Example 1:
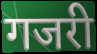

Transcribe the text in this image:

गजरी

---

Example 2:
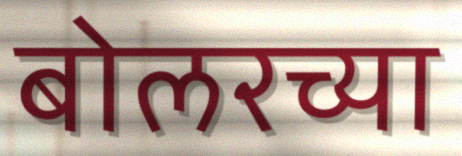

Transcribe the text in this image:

बोलरच्या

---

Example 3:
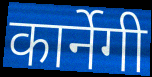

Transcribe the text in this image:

कार्नेगी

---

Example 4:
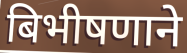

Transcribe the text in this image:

बिभीषणाने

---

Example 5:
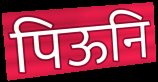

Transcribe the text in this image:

पिऊनि